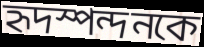
হৃদস্পন্দনকে